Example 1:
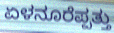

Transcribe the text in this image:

ಏಳನೂರೆಪ್ಪತ್ತು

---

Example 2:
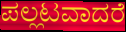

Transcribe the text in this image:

ಪಲ್ಲಟವಾದರೆ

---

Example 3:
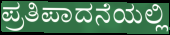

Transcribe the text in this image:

ಪ್ರತಿಪಾದನೆಯಲ್ಲಿ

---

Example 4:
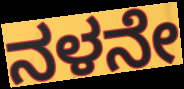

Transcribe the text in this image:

ನಳನೇ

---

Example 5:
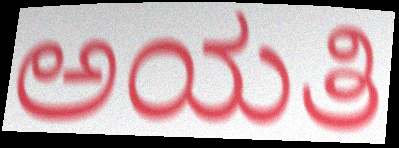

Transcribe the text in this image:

ಅಯತಿ